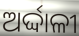
ଅର୍ଦ୍ଦାଳୀ